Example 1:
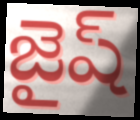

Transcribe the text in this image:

జైష్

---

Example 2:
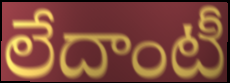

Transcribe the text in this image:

లేదాంటీ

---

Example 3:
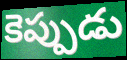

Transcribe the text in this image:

కెప్పుడు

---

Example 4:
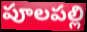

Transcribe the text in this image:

పూలపల్లి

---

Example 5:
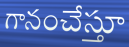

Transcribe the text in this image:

గానంచేస్తూ